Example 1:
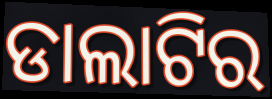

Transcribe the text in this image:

ଡାଲାଟିର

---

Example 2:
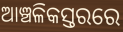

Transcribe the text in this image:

ଆଞ୍ଚଳିକସ୍ତରରେ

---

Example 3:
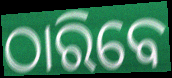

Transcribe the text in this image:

ଠାରିବେ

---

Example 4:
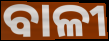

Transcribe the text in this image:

ବାଳୀ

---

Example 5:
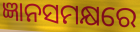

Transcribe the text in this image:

ଜ୍ଞାନସମକ୍ଷରେ